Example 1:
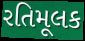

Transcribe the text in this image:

રતિમૂલક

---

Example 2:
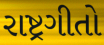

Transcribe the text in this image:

રાષ્ટ્રગીતો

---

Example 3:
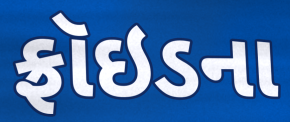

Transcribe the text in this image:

ફ્રૉઇડના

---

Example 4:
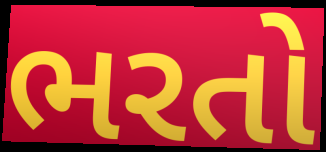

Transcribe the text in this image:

ભરતો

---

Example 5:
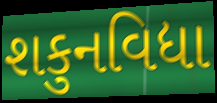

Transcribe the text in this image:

શકુનવિદ્યા